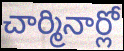
చార్మినార్లో